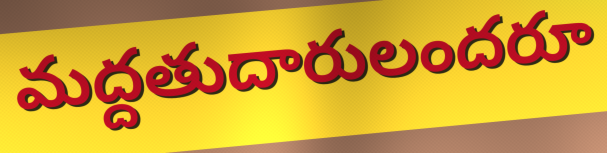
మద్దతుదారులందరూ